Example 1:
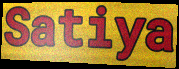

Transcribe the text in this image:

Satiya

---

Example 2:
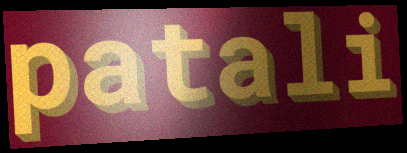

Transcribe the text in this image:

patali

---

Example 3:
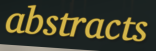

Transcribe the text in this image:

abstracts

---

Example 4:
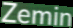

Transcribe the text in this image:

Zemin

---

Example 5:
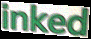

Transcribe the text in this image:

inked